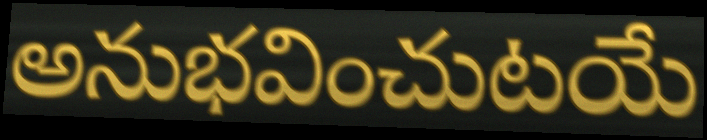
అనుభవించుటయే